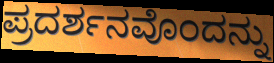
ಪ್ರದರ್ಶನವೊಂದನ್ನು